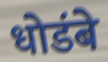
धोडंबे